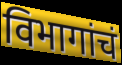
विभागांचं